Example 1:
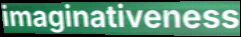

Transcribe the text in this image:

imaginativeness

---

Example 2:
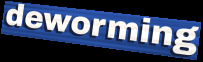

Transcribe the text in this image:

deworming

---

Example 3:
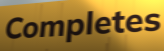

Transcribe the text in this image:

Completes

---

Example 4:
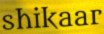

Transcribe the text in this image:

shikaar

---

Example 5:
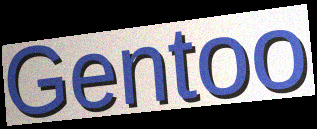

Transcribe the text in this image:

Gentoo